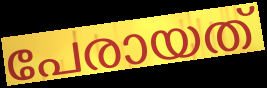
പേരായത്